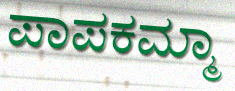
ಪಾಪಕಮ್ಮಾ